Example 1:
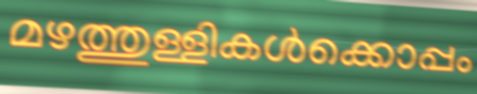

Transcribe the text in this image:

മഴത്തുള്ളികൾക്കൊപ്പം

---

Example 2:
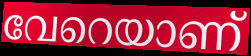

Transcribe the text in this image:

വേറെയാണ്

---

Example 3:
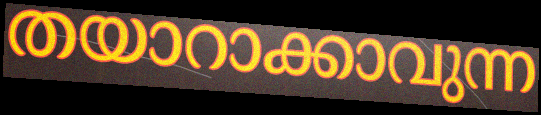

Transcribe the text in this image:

തയാറാക്കാവുന്ന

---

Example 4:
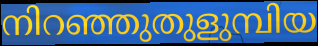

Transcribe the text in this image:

നിറഞ്ഞുതുളുമ്പിയ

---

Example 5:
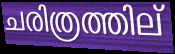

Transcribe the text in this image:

ചരിത്രത്തില്